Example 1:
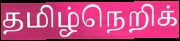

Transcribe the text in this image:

தமிழ்நெறிக்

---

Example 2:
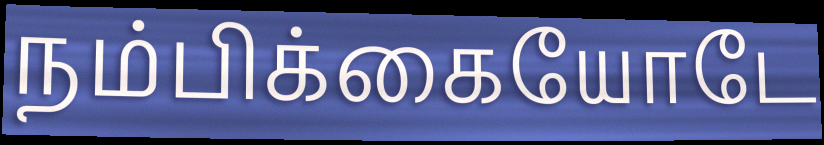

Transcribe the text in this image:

நம்பிக்கையோடே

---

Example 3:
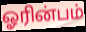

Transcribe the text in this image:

ஓரின்பம்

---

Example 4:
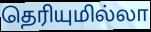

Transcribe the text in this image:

தெரியுமில்லா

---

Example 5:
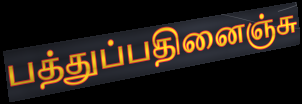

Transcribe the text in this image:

பத்துப்பதினைஞ்சு